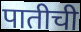
पातीची